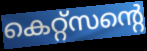
കെറ്റ്സന്റെ